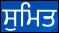
ਸੁਮਿਤ